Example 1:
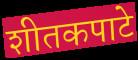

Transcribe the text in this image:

शीतकपाटे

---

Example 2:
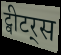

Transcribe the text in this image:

ट्वीटर्स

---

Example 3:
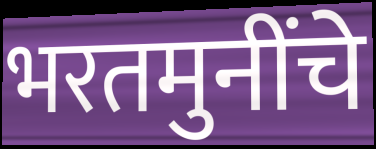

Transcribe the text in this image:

भरतमुनींचे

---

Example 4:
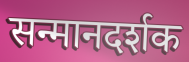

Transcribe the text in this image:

सन्मानदर्शक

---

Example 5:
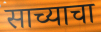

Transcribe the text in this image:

साच्याचा